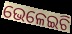
ଭେଳେଇଚି